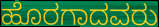
ಹೊರಗಾದವರು